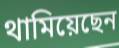
থামিয়েছেন